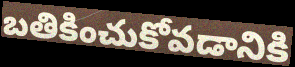
బతికించుకోవడానికి